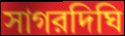
সাগরদিঘি